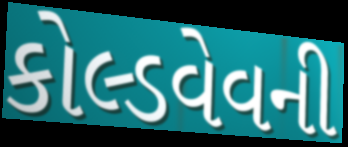
કોલ્ડવેવની